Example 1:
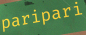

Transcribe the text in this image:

paripari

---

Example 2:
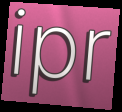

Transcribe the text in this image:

ipr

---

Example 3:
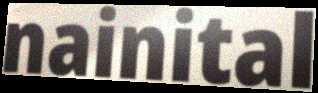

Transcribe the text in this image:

nainital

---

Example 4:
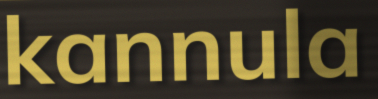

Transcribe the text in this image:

kannula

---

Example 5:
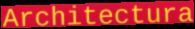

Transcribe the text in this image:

Architectura